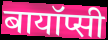
बायॉप्सी